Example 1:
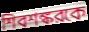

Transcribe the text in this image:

শিবশঙ্করকে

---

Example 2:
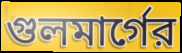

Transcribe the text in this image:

গুলমার্গের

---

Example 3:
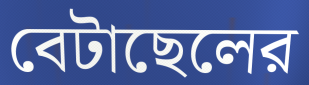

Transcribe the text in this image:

বেটাছেলের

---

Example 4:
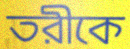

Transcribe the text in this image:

তরীকে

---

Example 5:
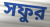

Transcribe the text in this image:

সফুর